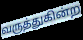
வருத்துகின்ற